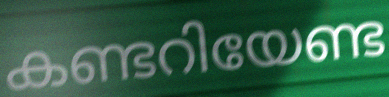
കണ്ടറിയേണ്ട